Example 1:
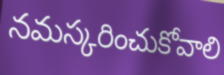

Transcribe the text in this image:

నమస్కరించుకోవాలి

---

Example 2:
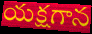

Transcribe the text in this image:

యక్షగాన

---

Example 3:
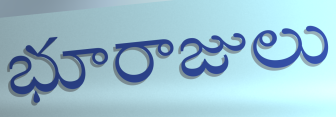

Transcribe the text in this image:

భూరాజులు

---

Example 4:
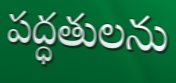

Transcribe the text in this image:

పద్ధతులను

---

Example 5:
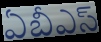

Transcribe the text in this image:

ఏబీఎస్